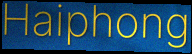
Haiphong